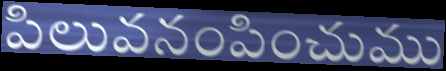
పిలువనంపించుము